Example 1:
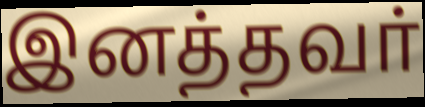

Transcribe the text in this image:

இனத்தவர்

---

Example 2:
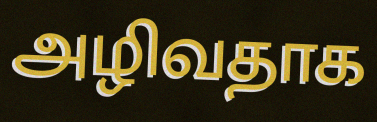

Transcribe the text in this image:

அழிவதாக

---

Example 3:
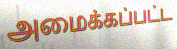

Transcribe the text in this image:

அமைக்கப்பட்ட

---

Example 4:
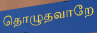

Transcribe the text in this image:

தொழுதவாறே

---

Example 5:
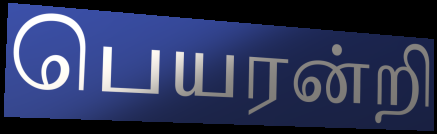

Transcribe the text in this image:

பெயரன்றி